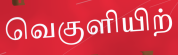
வெகுளியிற்